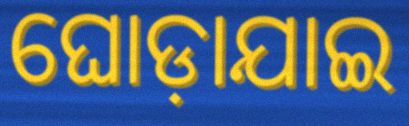
ଘୋଡ଼ାଯାଇ